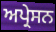
ਅਪ੍ਰੇਸਨ